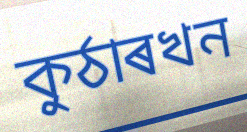
কুঠাৰখন